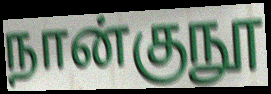
நான்குநூ